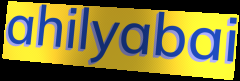
ahilyabai